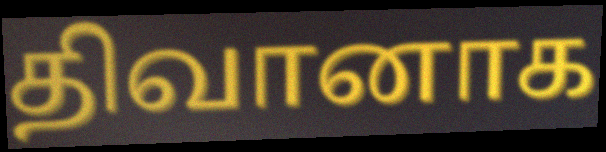
திவானாக